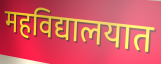
महविद्यालयात